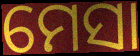
ମେସା